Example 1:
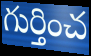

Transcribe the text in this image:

గుర్తించ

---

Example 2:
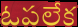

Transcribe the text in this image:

ఓపలేక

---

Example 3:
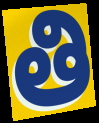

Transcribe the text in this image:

తి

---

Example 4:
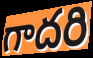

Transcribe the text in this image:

గాదరి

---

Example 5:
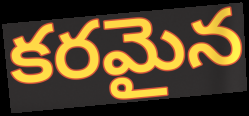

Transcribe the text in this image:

కరమైన